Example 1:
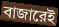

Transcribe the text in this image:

বাজারেই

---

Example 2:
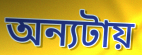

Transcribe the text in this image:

অন্যটায়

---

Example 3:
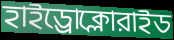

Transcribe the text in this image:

হাইড্রোক্লোরাইড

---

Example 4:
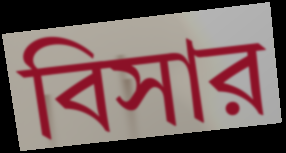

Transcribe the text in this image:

বিসার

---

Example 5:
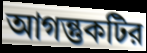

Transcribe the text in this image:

আগন্তুকটির